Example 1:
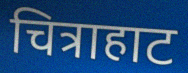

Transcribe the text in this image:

चित्राहाट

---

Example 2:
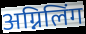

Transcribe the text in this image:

अग्निलिंग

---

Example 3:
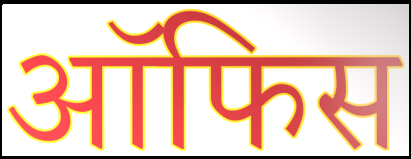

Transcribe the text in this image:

ऑफिस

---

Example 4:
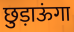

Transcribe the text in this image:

छुड़ाऊंगा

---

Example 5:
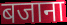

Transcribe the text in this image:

बजाना